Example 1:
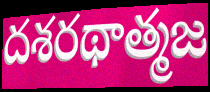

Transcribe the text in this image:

దశరథాత్మజ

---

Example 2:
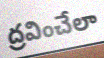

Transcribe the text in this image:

ద్రవించేలా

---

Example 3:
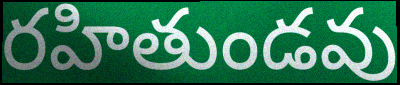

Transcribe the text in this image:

రహితుండవు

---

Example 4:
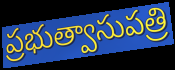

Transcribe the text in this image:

ప్రభుత్వాసుపత్రి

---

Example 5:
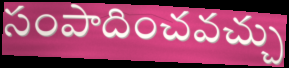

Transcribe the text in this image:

సంపాదించవచ్చు